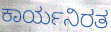
ಕಾರ್ಯನಿರತ